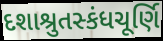
દશાશ્રુતસ્કંધચૂર્ણિ